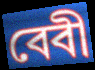
বেবী